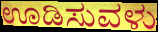
ಊಡಿಸುವಳು